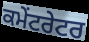
ਕਮੇਂਟਰੇਟਰ